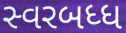
સ્વરબધ્ધ